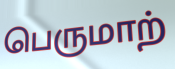
பெருமாற்